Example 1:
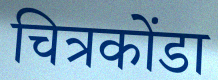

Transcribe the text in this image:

चित्रकोंडा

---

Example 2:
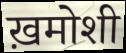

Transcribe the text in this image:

ख़मोशी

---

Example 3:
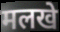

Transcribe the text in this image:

मलखे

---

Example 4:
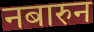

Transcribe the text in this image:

नबारुन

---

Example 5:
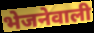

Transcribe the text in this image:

भेजनेवाली